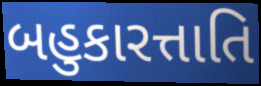
બહુકારત્તાતિ